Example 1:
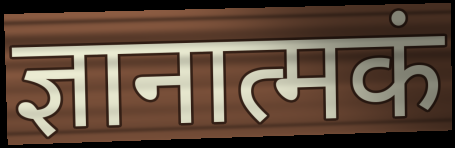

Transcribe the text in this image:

ज्ञानात्मकं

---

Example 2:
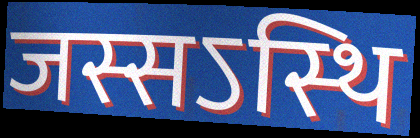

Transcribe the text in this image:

जस्सऽस्थि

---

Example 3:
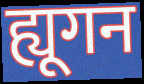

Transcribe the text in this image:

ह्यूगन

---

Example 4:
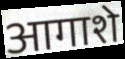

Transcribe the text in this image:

आगाशे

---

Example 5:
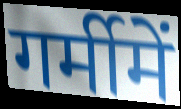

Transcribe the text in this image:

गर्मीमें